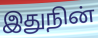
இதுநின்